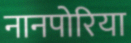
नानपोरिया